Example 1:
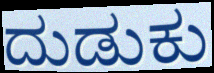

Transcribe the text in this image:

ದುಡುಕು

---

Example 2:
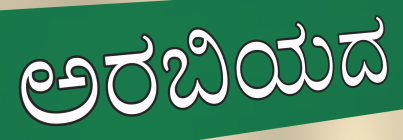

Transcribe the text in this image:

ಅರಬಿಯದ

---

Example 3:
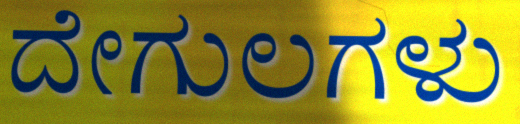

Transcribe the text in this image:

ದೇಗುಲಗಳು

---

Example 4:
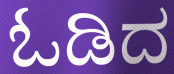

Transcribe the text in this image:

ಓಡಿದ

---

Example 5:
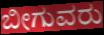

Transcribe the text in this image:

ಬೀಗುವರು